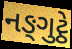
નઙ્ગુટ્ઠે